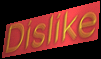
Dislike